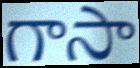
గాసా